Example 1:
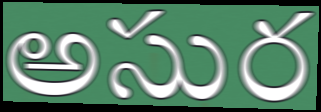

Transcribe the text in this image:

అసుర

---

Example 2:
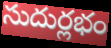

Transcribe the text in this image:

సుదుర్లభం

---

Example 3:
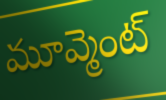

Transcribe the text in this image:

మూవ్మెంట్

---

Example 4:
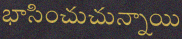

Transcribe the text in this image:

భాసించుచున్నాయి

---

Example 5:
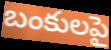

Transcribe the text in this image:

బంకులపై